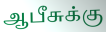
ஆபீசுக்கு